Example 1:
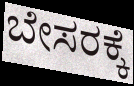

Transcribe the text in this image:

ಬೇಸರಕ್ಕೆ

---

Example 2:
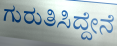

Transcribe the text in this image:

ಗುರುತಿಸಿದ್ದೇನೆ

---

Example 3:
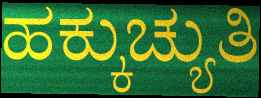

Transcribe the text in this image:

ಹಕ್ಕುಚ್ಯುತಿ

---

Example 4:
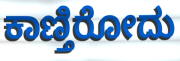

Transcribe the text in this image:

ಕಾಣ್ತಿರೋದು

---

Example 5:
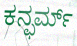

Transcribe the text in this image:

ಕನ್ಫರ್ಮ್